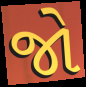
જો